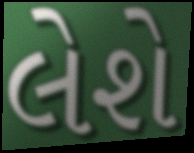
લેશે